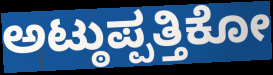
ಅಟ್ಠುಪ್ಪತ್ತಿಕೋ